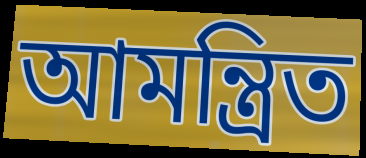
আমন্ত্ৰিত